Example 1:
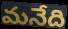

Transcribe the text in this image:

మనేది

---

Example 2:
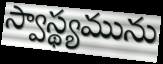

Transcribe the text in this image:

స్వాస్థ్యమును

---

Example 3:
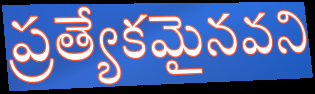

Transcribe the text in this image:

ప్రత్యేకమైనవని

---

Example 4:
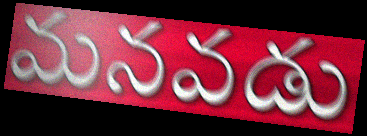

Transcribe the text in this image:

మనవడు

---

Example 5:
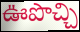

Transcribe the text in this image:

ఊపొచ్చి